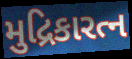
મુદ્રિકારત્ન